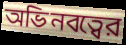
অভিনবত্বের